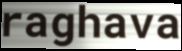
raghava